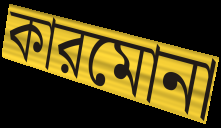
কারমোনা